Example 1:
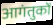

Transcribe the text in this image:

आगंतुकों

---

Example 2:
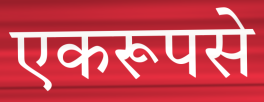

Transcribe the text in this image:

एकरूपसे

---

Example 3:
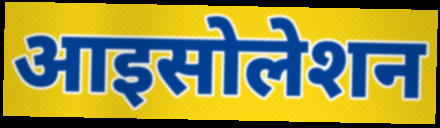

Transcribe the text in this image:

आइसोलेशन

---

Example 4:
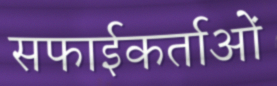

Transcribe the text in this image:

सफाईकर्ताओं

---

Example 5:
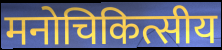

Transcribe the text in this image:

मनोचिकित्सीय